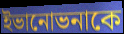
ইভানোভনাকে